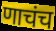
णाचंच